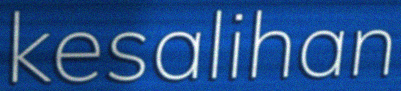
kesalihan